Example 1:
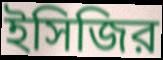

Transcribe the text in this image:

ইসিজির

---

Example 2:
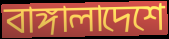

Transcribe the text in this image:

বাঙ্গালাদেশে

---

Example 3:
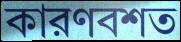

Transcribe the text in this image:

কারণবশত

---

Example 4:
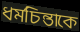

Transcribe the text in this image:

ধর্মচিন্তাকে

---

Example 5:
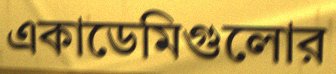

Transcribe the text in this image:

একাডেমিগুলোর